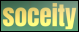
soceity